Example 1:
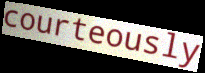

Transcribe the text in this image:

courteously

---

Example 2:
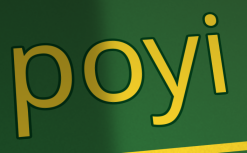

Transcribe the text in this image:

poyi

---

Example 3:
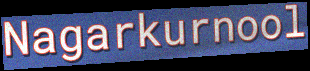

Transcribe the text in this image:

Nagarkurnool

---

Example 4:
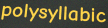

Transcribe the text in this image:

polysyllabic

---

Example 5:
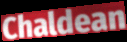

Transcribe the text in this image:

Chaldean